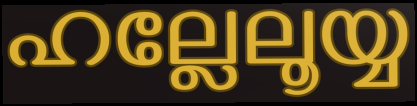
ഹല്ലേലൂയ്യ